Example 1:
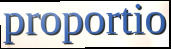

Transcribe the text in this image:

proportio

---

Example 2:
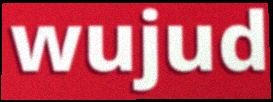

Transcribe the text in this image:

wujud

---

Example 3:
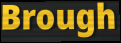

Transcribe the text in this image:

Brough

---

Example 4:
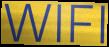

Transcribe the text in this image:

WIFI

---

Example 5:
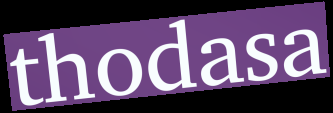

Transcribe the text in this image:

thodasa